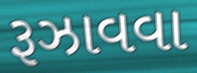
રૂઝાવવા